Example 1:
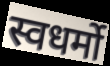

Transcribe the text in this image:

स्वधर्मो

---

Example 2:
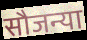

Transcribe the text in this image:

सौजन्या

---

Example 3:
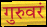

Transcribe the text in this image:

गुरुवरं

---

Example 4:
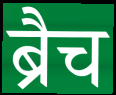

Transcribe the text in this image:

ब्रैच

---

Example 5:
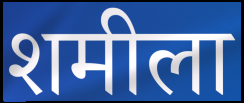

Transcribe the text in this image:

शमीला